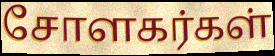
சோளகர்கள்